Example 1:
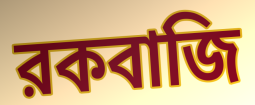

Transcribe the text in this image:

রকবাজি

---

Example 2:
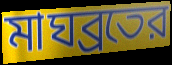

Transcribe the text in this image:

মাঘব্রতের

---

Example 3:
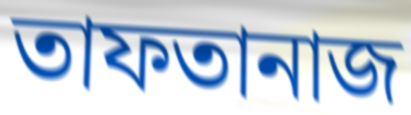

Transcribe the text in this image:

তাফতানাজ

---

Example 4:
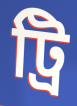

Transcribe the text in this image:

ট্রি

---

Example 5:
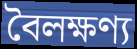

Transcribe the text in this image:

বৈলক্ষণ্য